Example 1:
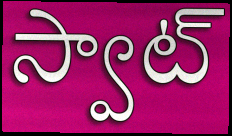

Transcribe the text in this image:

స్వాట్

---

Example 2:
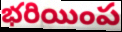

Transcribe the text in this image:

భరియింప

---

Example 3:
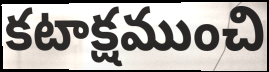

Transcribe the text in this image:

కటాక్షముంచి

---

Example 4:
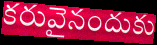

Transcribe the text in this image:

కరువైనందుకు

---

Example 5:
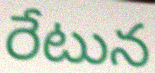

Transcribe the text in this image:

రేటున